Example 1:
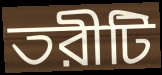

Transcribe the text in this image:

তরীটি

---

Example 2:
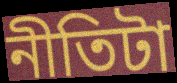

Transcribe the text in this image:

নীতিটা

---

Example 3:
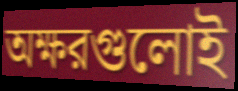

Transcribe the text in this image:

অক্ষরগুলোই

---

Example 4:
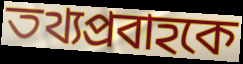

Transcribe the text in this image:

তথ্যপ্রবাহকে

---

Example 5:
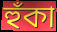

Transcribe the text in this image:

হুঁকা